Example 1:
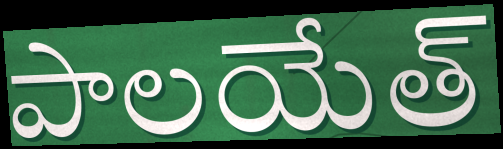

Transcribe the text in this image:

పాలయేత్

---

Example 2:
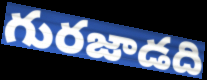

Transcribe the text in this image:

గురజాడది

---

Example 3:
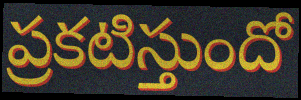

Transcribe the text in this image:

ప్రకటిస్తుందో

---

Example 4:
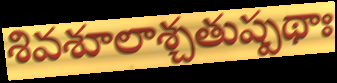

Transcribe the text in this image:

శివశూలాశ్చతుష్పథాః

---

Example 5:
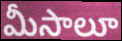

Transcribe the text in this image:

మీసాలూ